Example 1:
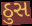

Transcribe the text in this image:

ઠુસ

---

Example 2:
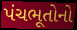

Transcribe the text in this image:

પંચભૂતોનો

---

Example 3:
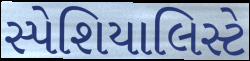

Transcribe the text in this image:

સ્પેશિયાલિસ્ટે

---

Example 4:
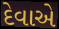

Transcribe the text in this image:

દેવાએ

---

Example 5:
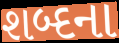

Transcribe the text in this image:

શબ્દના